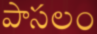
పాసలం